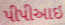
પીપીઆઇ